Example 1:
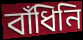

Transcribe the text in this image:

বাঁধিনি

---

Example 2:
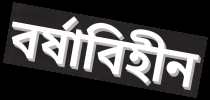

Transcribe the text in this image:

বর্ষাবিহীন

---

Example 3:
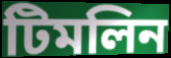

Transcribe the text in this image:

টিমলিন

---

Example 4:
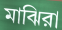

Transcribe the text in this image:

মাঝিরা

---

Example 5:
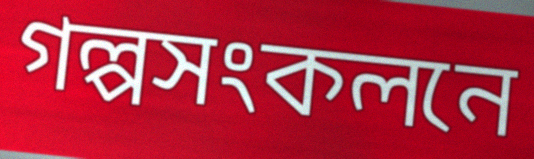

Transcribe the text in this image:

গল্পসংকলনে